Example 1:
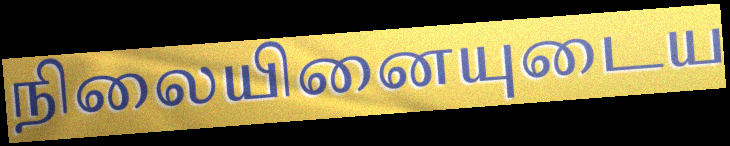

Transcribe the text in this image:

நிலையினையுடைய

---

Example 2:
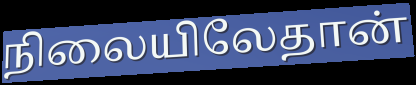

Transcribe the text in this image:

நிலையிலேதான்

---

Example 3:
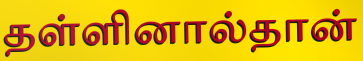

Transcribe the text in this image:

தள்ளினால்தான்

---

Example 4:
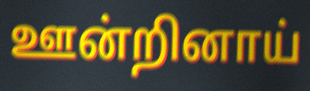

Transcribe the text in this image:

ஊன்றினாய்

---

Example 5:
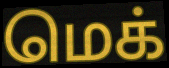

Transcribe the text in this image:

மெக்